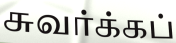
சுவர்க்கப்